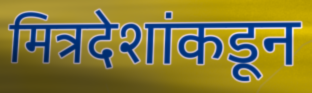
मित्रदेशांकडून